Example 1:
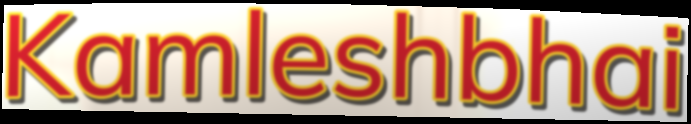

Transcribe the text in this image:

Kamleshbhai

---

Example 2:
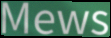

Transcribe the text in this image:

Mews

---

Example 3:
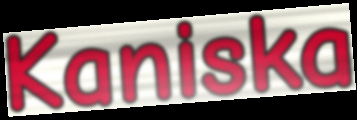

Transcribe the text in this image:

Kaniska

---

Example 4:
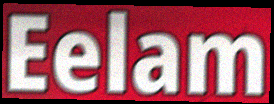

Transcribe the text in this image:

Eelam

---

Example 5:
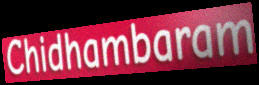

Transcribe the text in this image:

Chidhambaram